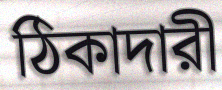
ঠিকাদারী